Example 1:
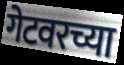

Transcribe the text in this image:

गेटवरच्या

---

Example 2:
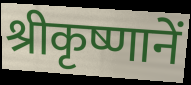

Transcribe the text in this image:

श्रीकृष्णानें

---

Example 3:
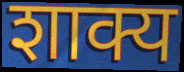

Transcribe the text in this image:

शाक्य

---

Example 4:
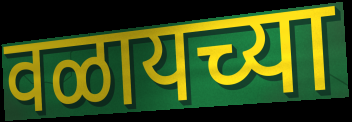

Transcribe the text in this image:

वळायच्या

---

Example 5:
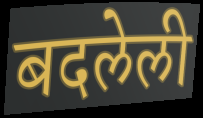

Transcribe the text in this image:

बदलेली